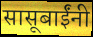
सासूबाईंनी